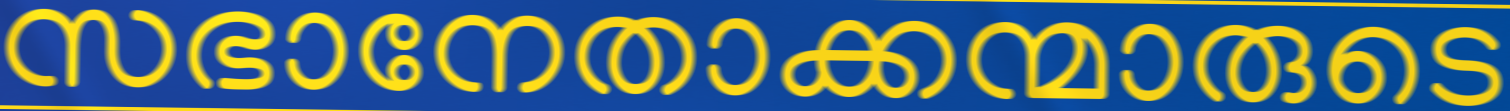
സഭാനേതാക്കന്മാരുടെ